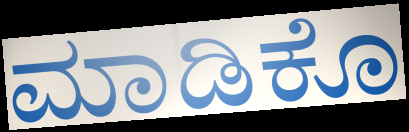
ಮಾಡಿಕೊ